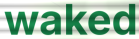
waked